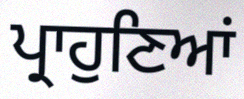
ਪ੍ਰਾਹੁਣਿਆਂ